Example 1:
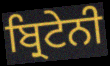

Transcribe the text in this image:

ਬ੍ਰਿਟੇਨੀ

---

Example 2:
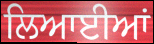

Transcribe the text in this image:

ਲਿਆਈਆਂ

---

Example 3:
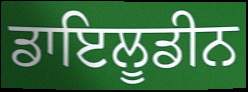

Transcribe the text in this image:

ਡਾਇਲੂਡੀਨ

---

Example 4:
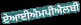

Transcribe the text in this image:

ਏਆਈਐਮਪੀਐਲਬੀ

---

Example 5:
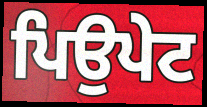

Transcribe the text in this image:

ਪਿਉਪੇਟ